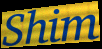
Shim